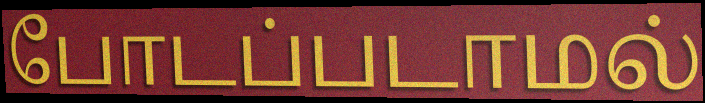
போடப்படாமல்